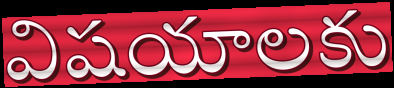
విషయాలకు